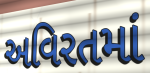
અવિરતમાં